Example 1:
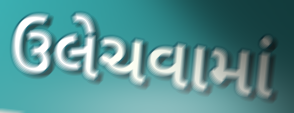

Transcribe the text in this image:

ઉલેચવામાં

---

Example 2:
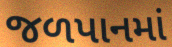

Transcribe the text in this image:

જળપાનમાં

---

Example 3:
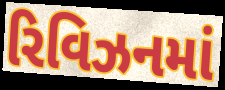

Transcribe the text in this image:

રિવિઝનમાં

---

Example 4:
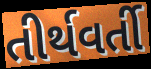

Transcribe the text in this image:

તીર્થવર્તી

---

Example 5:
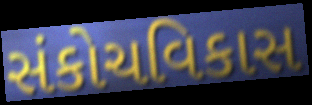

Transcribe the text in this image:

સંકોચવિકાસ